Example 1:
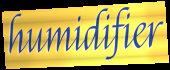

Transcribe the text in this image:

humidifier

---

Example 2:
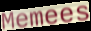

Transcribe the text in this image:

Memees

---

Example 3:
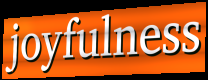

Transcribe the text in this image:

joyfulness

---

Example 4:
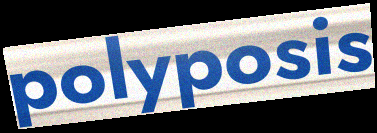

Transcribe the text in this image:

polyposis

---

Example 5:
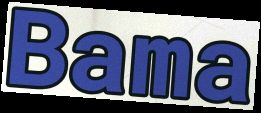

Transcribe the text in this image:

Bama